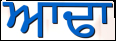
ਆਢਾ